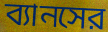
ব্যানসের